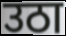
उठा